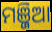
ମଞ୍ଜିଆ